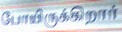
போயிருக்கிறார்